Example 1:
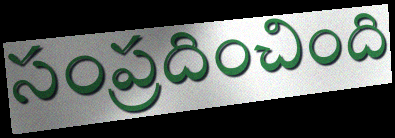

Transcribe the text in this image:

సంప్రదించింది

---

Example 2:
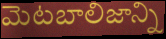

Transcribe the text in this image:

మెటబాలిజాన్ని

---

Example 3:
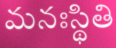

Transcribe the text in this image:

మనఃస్థితి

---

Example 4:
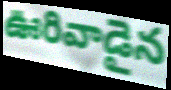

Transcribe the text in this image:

ఊరివాడైన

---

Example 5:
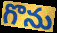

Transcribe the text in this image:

గొను